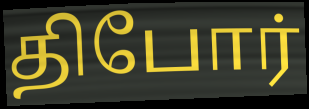
திபோர்